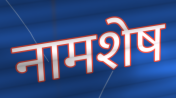
नामशेष